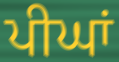
ਪੀਘਾਂ